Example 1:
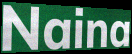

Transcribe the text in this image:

Naina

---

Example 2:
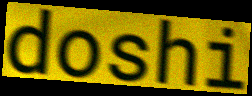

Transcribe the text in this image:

doshi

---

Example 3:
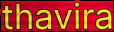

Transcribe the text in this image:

thavira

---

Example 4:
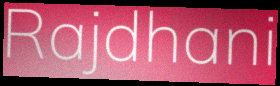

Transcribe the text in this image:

Rajdhani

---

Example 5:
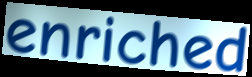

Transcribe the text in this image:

enriched